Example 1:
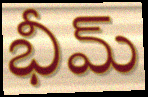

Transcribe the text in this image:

భీమ్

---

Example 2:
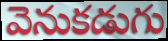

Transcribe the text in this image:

వెనుకడుగు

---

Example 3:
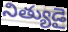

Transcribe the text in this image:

నిత్యుడై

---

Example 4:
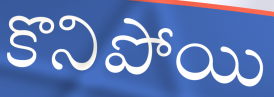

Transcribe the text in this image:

కొనిపోయి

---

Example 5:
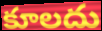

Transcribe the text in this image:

కూలదు